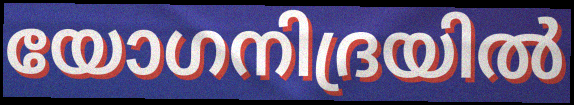
യോഗനിദ്രയിൽ